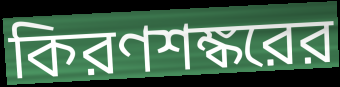
কিরণশঙ্করের